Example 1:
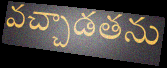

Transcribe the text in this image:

వచ్చాడతను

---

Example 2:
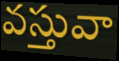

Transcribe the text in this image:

వస్తువా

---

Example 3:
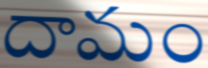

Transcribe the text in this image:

దామం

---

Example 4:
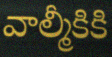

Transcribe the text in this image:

వాల్మీకికి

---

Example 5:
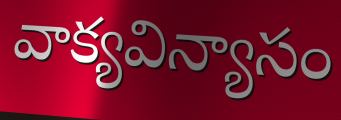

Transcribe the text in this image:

వాక్యవిన్యాసం